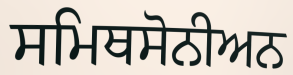
ਸਮਿਥਸੋਨੀਅਨ